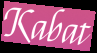
Kabat